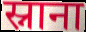
स्नाना